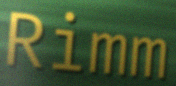
Rimm